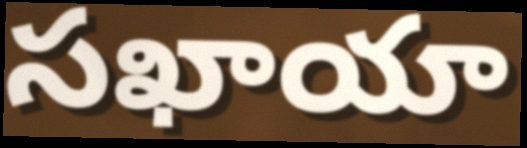
సఖాయా